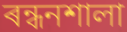
ৰন্ধনশালা